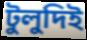
টুলুদিই